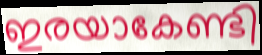
ഇരയാകേണ്ടി